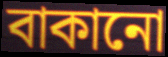
বাকানো